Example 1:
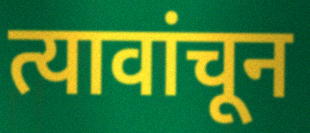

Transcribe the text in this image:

त्यावांचून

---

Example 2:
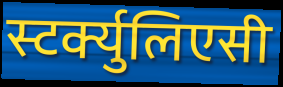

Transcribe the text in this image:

स्टर्क्युलिएसी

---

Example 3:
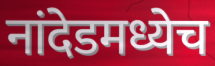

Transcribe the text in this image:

नांदेडमध्येच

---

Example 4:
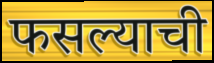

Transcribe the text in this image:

फसल्याची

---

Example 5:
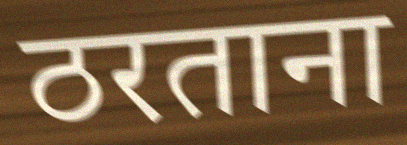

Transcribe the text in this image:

ठरताना